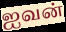
ஐவன்